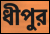
ধীপুর